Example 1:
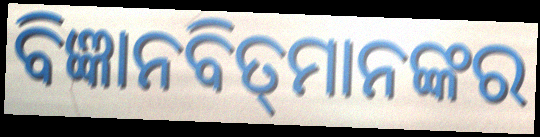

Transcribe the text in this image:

ବିଜ୍ଞାନବିତ୍‌ମାନଙ୍କର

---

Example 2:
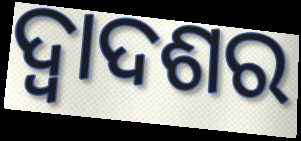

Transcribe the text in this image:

ଦ୍ୱାଦଶର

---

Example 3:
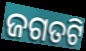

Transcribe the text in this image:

ଜଗତଟି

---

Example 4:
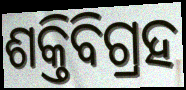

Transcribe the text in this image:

ଶକ୍ତିବିଗ୍ରହ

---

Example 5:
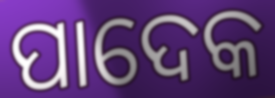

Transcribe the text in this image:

ପାଦେକ